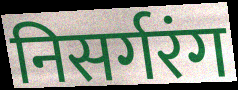
निसर्गरंग